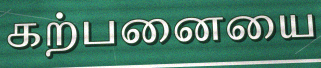
கற்பனையை